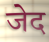
जेद